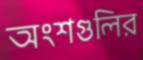
অংশগুলির